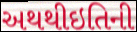
અથથીઇતિની